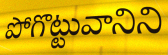
పోగొట్టువానిని